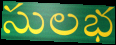
సులభ